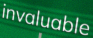
invaluable